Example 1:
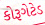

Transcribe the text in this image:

કોરૂગેટેડ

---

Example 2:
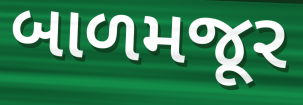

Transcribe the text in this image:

બાળમજૂર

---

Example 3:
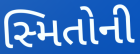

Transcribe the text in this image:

સ્મિતોની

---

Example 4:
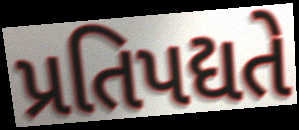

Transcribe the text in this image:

પ્રતિપદ્યતે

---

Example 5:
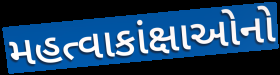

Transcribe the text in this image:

મહત્વાકાંક્ષાઓનો